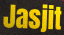
Jasjit